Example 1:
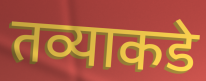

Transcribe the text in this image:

तव्याकडे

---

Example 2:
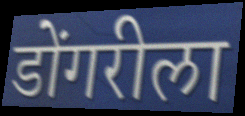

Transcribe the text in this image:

डोंगरीला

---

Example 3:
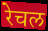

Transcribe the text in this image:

रेचल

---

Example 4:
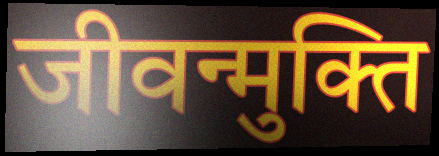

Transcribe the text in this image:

जीवन्मुक्ति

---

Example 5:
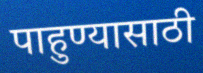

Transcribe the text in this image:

पाहुण्यासाठी